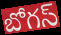
బోగస్